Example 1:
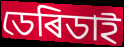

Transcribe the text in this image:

ডেৰিডাই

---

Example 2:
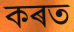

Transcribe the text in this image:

কৰত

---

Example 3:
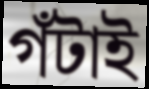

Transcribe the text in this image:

গঁটাই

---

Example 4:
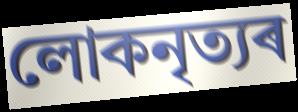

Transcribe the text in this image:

লোকনৃত্যৰ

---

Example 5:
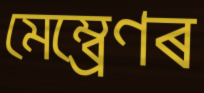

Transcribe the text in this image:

মেম্ব্ৰেণৰ